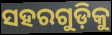
ସହରଗୁଡ଼ିକୁ